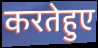
करतेहुए